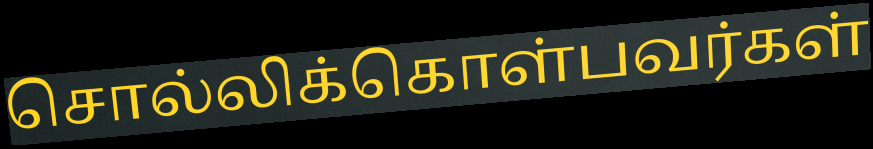
சொல்லிக்கொள்பவர்கள்